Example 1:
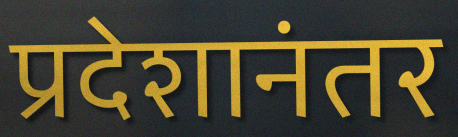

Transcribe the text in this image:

प्रदेशानंतर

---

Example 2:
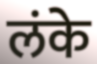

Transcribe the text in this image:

लंके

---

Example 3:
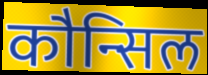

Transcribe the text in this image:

कौन्सिल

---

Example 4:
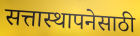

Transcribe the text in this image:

सत्तास्थापनेसाठी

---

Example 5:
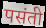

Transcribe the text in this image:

पसंती